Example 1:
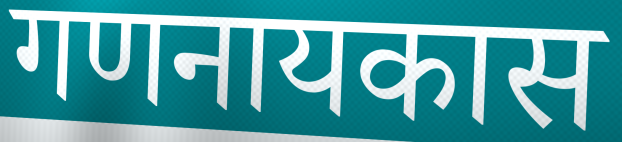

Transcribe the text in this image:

गणनायकास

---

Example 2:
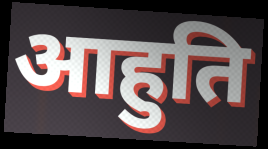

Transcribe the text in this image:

आहुति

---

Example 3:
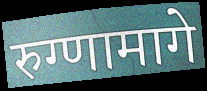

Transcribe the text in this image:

रुग्णामागे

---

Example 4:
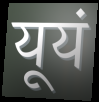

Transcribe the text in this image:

यूयं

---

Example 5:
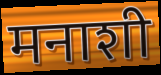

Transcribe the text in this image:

मनाशी